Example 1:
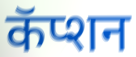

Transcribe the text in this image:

कॅप्शन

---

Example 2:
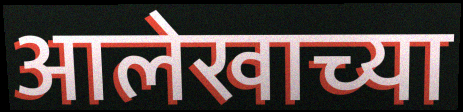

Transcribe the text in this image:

आलेखाच्या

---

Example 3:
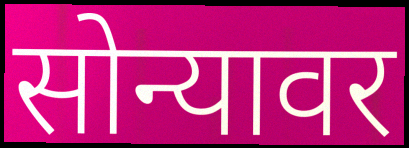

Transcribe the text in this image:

सोन्यावर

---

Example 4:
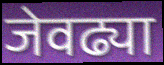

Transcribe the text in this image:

जेवढ्या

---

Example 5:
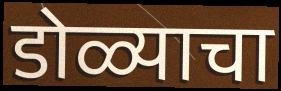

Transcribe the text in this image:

डोळ्याचा